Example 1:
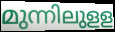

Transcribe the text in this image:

മുന്നിലുളള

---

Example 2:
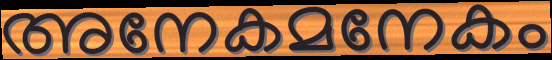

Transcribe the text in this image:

അനേകമനേകം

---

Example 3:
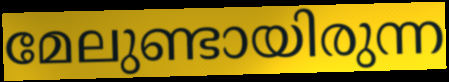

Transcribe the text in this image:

മേലുണ്ടായിരുന്ന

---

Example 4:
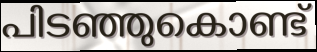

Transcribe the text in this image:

പിടഞ്ഞുകൊണ്ട്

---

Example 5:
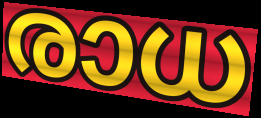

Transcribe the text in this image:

രാധ